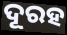
ଦୂରହ